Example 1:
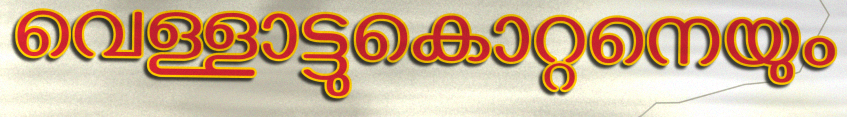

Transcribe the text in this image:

വെള്ളാട്ടുകൊറ്റനെയും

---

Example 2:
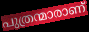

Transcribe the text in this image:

പുത്രന്മാരാണ്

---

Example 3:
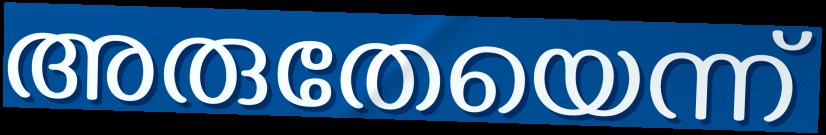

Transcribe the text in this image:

അരുതേയെന്ന്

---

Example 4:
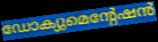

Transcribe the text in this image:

ഡോക്യുമെന്റേഷൻ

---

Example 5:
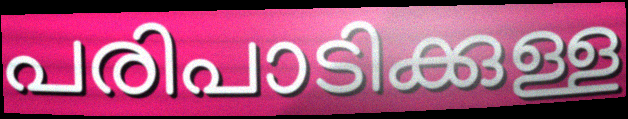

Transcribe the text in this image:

പരിപാടിക്കുള്ള